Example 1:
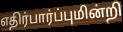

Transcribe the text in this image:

எதிர்பார்ப்புமின்றி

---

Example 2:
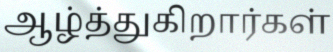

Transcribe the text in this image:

ஆழ்த்துகிறார்கள்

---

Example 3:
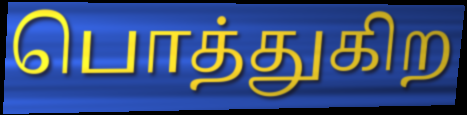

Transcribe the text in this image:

பொத்துகிற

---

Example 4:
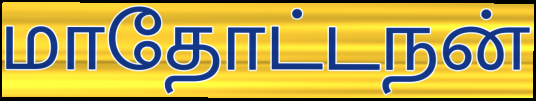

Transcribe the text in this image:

மாதோட்டநன்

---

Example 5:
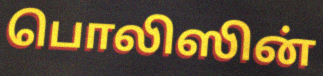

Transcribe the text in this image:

பொலிஸின்